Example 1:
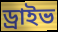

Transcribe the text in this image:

ড্রাইভ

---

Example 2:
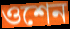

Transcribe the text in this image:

ওশেন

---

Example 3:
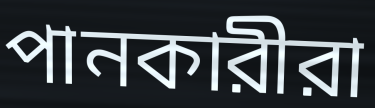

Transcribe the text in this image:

পানকারীরা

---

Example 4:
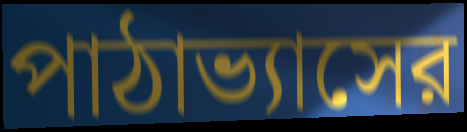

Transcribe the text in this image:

পাঠাভ্যাসের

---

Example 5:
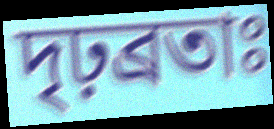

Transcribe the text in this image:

দৃঢ়ব্রতাঃ